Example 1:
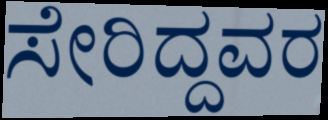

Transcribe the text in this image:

ಸೇರಿದ್ದವರ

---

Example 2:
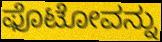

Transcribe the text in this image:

ಫೊಟೋವನ್ನು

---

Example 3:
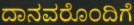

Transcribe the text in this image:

ದಾನವರೊಂದಿಗೆ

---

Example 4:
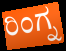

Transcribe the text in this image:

ರಿಂಗ್ನ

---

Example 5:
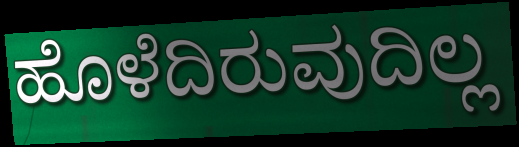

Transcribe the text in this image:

ಹೊಳೆದಿರುವುದಿಲ್ಲ